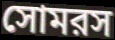
সোমরস